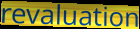
revaluation